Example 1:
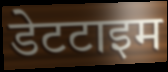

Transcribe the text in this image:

डेटटाइम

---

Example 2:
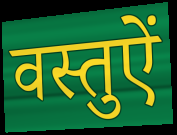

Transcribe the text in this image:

वस्तुऐं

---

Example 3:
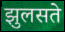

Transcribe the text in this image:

झुलसते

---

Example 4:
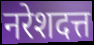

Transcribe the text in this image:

नरेशदत्त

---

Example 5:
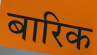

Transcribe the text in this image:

बारिक